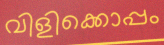
വിളിക്കൊപ്പം